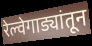
रेल्वेगाड्यांतून